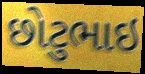
છોટુભાઇ